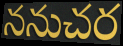
ననుచర